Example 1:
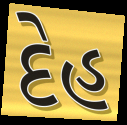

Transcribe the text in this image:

દેહ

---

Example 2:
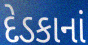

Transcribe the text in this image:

દેડકાનાં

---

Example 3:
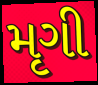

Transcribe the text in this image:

મૃગી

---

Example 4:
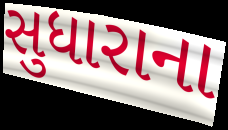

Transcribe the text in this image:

સુધારાના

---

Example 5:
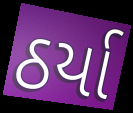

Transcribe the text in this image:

ઠર્યા